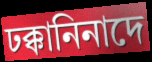
ঢক্কানিনাদে